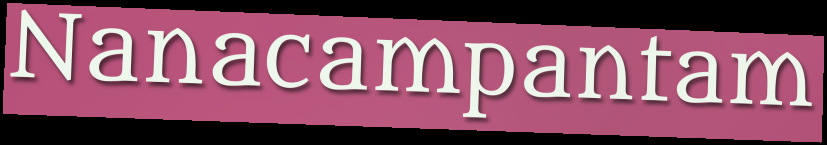
Nanacampantam